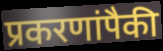
प्रकरणांपैकी